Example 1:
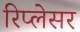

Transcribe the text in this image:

रिप्लेसर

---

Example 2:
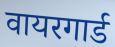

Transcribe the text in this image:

वायरगार्ड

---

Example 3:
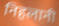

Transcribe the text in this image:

निहलानी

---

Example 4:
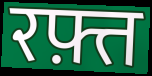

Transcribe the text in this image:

रफ़्त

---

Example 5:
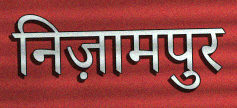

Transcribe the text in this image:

निज़ामपुर